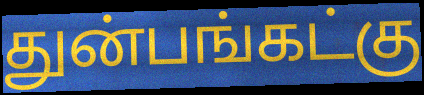
துன்பங்கட்கு